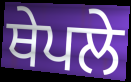
ਥੇਪਲੇ